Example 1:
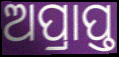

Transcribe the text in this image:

ଅପ୍ରାପ୍ତ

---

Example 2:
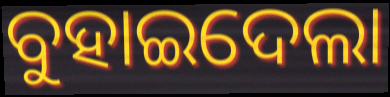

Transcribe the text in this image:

ବୁହାଇଦେଲା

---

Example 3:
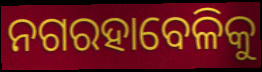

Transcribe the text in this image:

ନଗରହାବେଳିକୁ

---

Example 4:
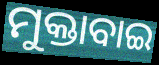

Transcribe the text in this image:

ମୁକ୍ତାବାଇ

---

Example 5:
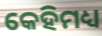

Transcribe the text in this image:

କେହିମଧ୍ୟ